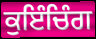
ਕੁਇੰਚਿੰਗ